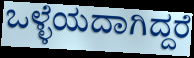
ಒಳ್ಳೆಯದಾಗಿದ್ದರೆ